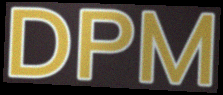
DPM